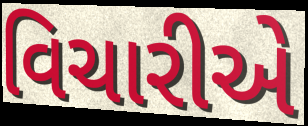
વિચારીએ